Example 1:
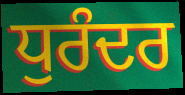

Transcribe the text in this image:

ਧੁਰੰਦਰ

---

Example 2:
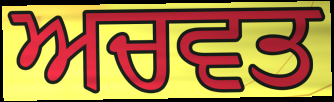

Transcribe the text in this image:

ਅਚਵਤ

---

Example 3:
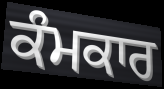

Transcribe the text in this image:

ਕੰਮਕਾਰ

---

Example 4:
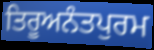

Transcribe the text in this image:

ਤਿਰੂਅਨੰਤਪੁਰਮ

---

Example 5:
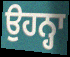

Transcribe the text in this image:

ਉਹਨ੍ਹਾ